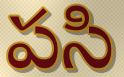
పసి